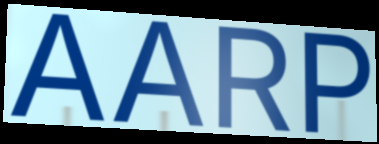
AARP